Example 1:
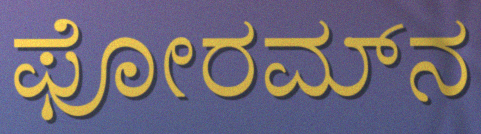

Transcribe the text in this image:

ಫೋರಮ್‌ನ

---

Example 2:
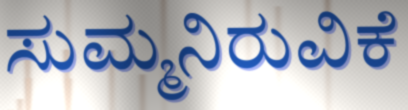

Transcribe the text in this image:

ಸುಮ್ಮನಿರುವಿಕೆ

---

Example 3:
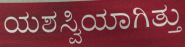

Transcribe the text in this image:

ಯಶಸ್ವಿಯಾಗಿತ್ತು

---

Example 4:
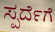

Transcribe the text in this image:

ಸ್ಪರ್ದೆಗೆ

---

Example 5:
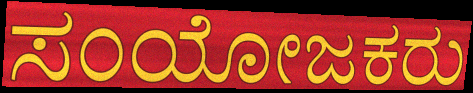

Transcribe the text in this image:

ಸಂಯೋಜಕರು